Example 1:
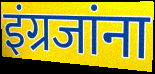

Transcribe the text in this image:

इंग्रजांना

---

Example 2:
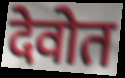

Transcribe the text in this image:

देवोत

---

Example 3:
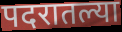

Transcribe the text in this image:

पदरातल्या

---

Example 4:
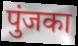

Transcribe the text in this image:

पुंजका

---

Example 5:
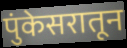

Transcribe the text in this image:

पुंकेसरातून